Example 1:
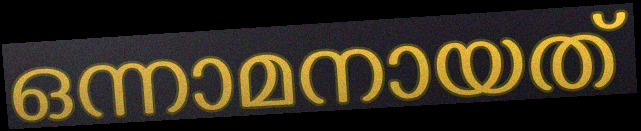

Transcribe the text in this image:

ഒന്നാമനായത്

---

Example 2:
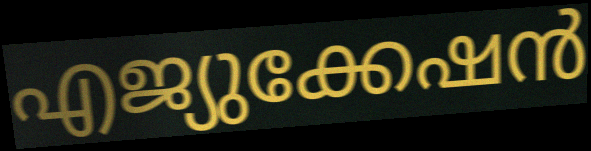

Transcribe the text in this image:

എജ്യുക്കേഷൻ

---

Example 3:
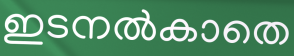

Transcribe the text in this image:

ഇടനൽകാതെ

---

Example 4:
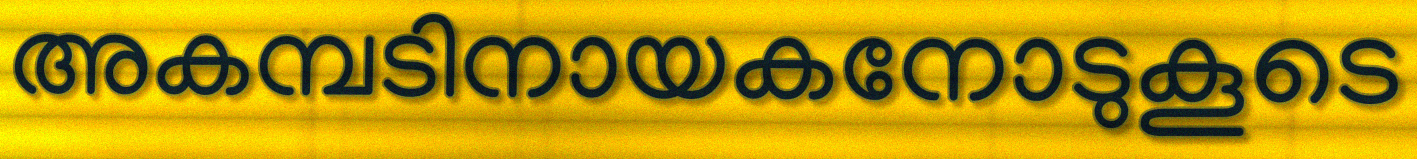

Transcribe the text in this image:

അകമ്പടിനായകനോടുകൂടെ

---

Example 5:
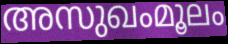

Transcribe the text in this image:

അസുഖംമൂലം